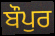
ਬੌਪੁਰ